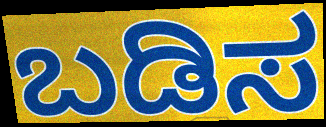
ಬಡಿಸ